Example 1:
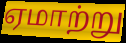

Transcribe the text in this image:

ஏமாற்று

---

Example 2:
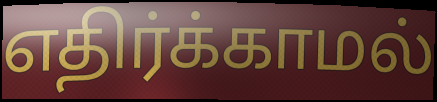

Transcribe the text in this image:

எதிர்க்காமல்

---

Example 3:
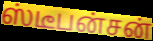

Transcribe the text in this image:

ஸ்டீபன்சன்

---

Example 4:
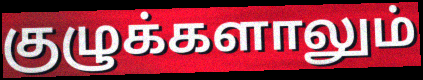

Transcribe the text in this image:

குழுக்களாலும்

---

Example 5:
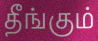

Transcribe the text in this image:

தீங்கும்